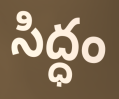
సిద్ధం